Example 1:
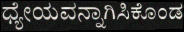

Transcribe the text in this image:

ಧ್ಯೇಯವನ್ನಾಗಿಸಿಕೊಂಡ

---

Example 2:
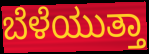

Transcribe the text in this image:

ಬೆಳೆಯುತ್ತಾ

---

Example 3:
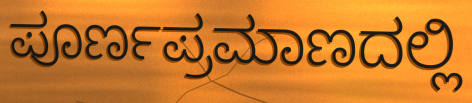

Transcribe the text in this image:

ಪೂರ್ಣಪ್ರಮಾಣದಲ್ಲಿ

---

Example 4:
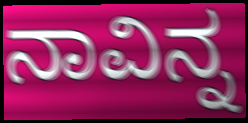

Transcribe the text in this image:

ನಾವಿನ್ನ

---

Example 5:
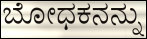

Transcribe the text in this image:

ಬೋಧಕನನ್ನು